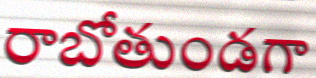
రాబోతుండగా